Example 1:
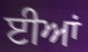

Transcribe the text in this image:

ਈਆਂ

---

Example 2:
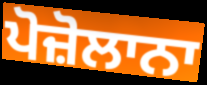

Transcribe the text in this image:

ਪੋਜ਼ੋਲਾਨਾ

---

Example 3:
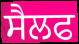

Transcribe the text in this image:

ਸੈਲਫ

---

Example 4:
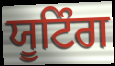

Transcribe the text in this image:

ਯੂਟਿੰਗ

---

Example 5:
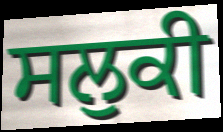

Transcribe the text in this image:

ਸਲੁਕੀ